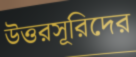
উত্তরসূরিদের